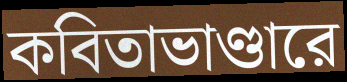
কবিতাভাণ্ডারে